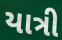
યાત્રી